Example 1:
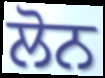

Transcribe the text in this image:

ਲੋਨ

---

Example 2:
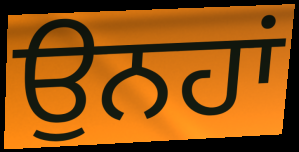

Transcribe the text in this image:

ਉਨਹਾਂ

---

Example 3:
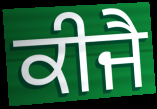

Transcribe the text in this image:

ਕੀਜੈ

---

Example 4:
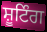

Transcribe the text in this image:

ਸ਼ੂਟਿੰਗ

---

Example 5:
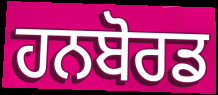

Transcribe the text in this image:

ਹਨਬੋਰਡ